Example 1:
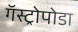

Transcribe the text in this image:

गॅस्ट्रोपोडा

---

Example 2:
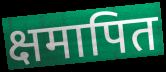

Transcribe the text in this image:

क्षमापित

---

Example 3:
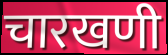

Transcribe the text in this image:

चारखणी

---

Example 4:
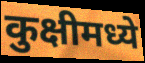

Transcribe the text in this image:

कुक्षीमध्ये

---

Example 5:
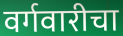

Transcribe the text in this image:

वर्गवारीचा